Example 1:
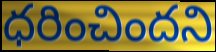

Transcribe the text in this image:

ధరించిందని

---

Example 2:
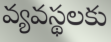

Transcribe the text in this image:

వ్యవస్థలకు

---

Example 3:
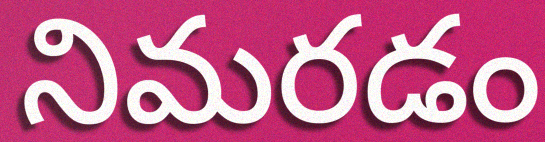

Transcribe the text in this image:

నిమరడం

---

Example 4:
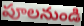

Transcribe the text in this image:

పూలనుండి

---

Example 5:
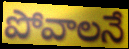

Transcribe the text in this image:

పోవాలనే